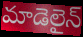
మాడెలైన్